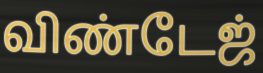
விண்டேஜ்